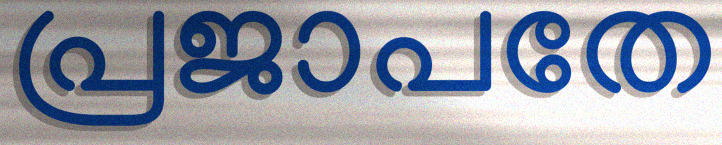
പ്രജാപതേ